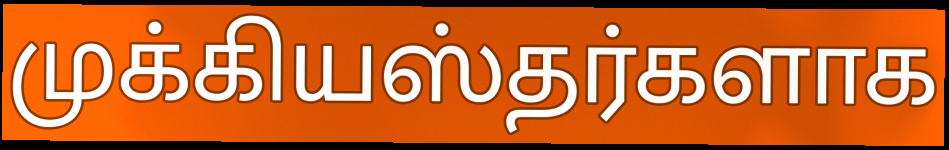
முக்கியஸ்தர்களாக